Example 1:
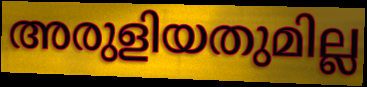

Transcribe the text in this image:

അരുളിയതുമില്ല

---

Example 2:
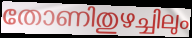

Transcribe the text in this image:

തോണിതുഴച്ചിലും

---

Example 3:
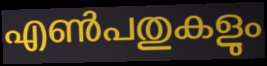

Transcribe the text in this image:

എൺപതുകളും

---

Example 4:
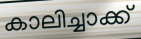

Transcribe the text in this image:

കാലിച്ചാക്ക്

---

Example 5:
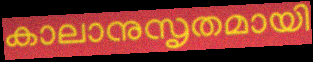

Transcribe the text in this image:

കാലാനുസൃതമായി